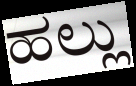
ಹಲ್ಲು